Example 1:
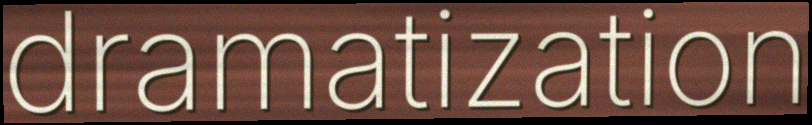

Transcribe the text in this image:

dramatization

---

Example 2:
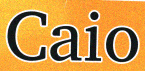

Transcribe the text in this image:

Caio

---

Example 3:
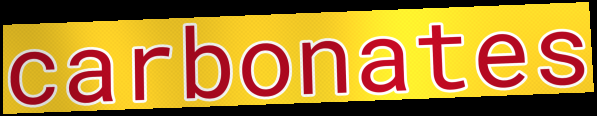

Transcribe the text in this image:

carbonates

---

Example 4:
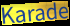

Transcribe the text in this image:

Karade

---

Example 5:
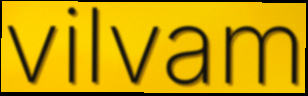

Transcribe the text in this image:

vilvam